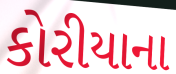
કોરીયાના